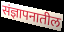
संज्ञापनातील